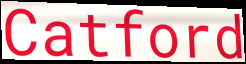
Catford